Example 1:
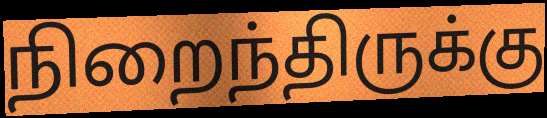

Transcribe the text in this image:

நிறைந்திருக்கு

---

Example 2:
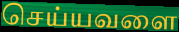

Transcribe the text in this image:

செய்யவளை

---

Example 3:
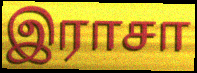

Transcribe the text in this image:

இராசா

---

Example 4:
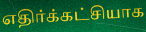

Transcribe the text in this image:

எதிர்க்கட்சியாக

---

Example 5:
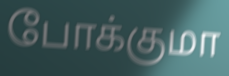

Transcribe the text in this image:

போக்குமா